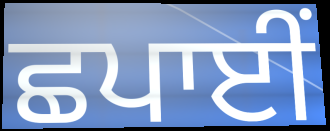
ਛਪਾਈਂ